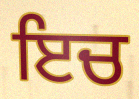
ਇਚ